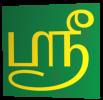
ஸ்ரீ